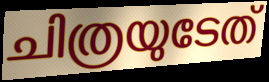
ചിത്രയുടേത്